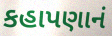
કહાપણાનં